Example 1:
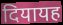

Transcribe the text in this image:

दियायह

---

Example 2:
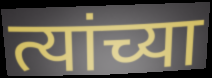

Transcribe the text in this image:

त्यांच्या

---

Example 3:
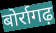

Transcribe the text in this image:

बोर्रागढ़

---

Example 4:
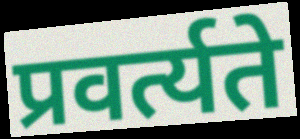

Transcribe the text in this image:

प्रवर्त्यते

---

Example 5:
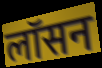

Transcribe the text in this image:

लॉसन